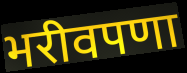
भरीवपणा